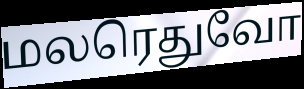
மலரெதுவோ